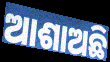
ଆଶାଅଛି